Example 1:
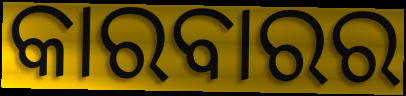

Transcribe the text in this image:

କାରବାରର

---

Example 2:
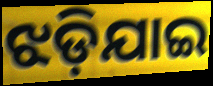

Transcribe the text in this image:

ଝଡ଼ିଯାଇ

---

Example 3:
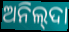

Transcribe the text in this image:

ଅନିଲ୍‌ଦା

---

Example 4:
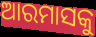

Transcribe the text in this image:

ଆରମାସକୁ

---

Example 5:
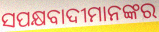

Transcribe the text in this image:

ସପକ୍ଷବାଦୀମାନଙ୍କର